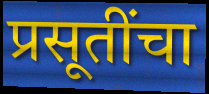
प्रसूतींचा